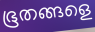
ഭൂതങ്ങളെ